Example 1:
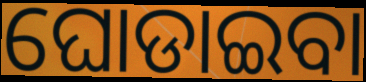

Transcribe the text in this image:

ଘୋଡାଇବା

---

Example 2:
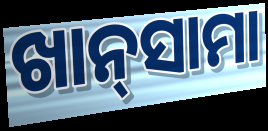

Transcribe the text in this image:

ଖାନ୍‍ସାମା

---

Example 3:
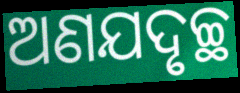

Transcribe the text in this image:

ଅଣଯଦୃଚ୍ଛ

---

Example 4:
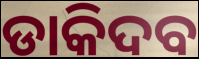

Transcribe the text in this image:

ଡାକିଦବ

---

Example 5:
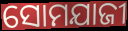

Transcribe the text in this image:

ସୋମଯାଜୀ